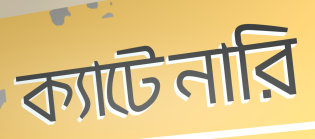
ক্যাটেনারি